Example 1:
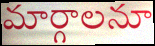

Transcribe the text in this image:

మార్గాలనూ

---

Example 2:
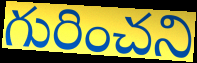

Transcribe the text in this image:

గురించని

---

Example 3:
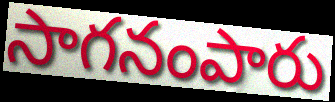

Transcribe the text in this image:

సాగనంపారు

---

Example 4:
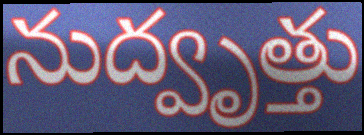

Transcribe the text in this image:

నుద్వృత్తు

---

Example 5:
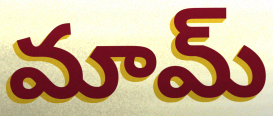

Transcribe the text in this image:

మామ్